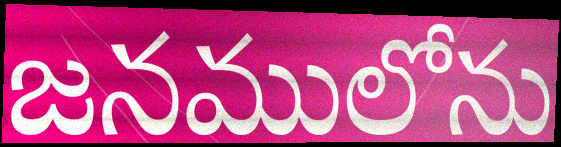
జనములోను